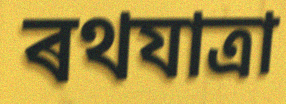
ৰথযাত্ৰা